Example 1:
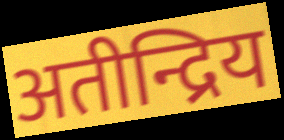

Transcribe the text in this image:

अतीन्द्रिय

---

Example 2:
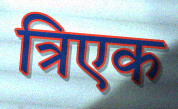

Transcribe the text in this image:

त्रिएक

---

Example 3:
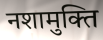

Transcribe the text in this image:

नशामुक्ति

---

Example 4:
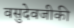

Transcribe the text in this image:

वसुदेवजीकी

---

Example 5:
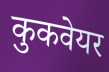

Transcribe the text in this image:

कुकवेयर